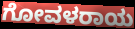
ಗೋವಳರಾಯ